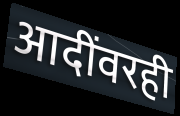
आदींवरही